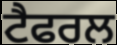
ਟੈਫਰਲ